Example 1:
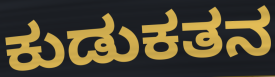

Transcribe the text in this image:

ಕುಡುಕತನ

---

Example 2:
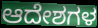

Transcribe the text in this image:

ಆದೇಶಗಳ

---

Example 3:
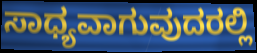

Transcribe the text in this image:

ಸಾಧ್ಯವಾಗುವುದರಲ್ಲಿ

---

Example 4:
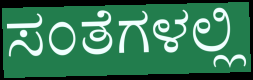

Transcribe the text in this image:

ಸಂತೆಗಳಲ್ಲಿ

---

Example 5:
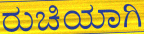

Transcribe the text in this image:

ರುಚಿಯಾಗಿ